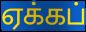
ஏக்கப்